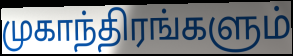
முகாந்திரங்களும்